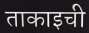
ताकाइची